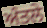
ਅੰਤਲੇ